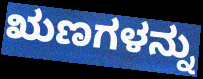
ಋಣಗಳನ್ನು